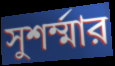
সুশর্ম্মার